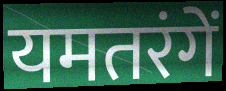
यमतरंगें